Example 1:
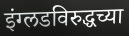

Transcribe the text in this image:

इंग्लडविरुद्धच्या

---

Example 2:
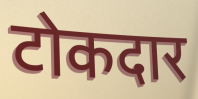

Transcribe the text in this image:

टोकदार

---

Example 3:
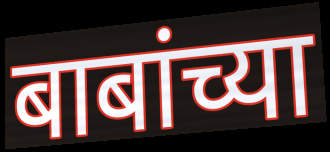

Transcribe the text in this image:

बाबांच्या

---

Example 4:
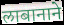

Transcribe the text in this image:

लाबानाने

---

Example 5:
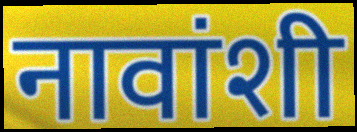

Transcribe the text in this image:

नावांशी